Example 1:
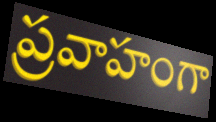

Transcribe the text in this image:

ప్రవాహంగా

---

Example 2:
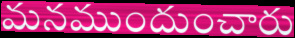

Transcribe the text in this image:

మనముందుంచారు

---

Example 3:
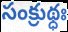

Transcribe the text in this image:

సంక్రుథ్ధః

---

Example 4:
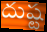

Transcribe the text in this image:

దుష్ట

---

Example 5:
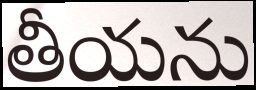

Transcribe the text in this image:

తీయను